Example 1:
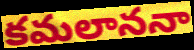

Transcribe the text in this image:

కమలాననా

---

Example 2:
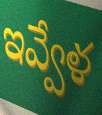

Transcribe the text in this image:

ఇవ్వేళ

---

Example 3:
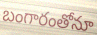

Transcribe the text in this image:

బంగారంతోనూ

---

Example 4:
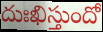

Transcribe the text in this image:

దుఃఖిస్తుందో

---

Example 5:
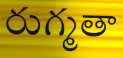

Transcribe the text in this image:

రుగ్మతా